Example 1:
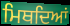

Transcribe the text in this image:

ਮਿਥਦਿਆਂ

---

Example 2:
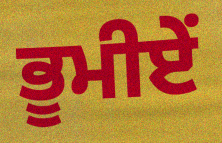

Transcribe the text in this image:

ਭੂਮੀਏਂ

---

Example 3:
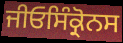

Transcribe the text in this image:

ਜੀਓਸਿੰਕ੍ਰੋਨਸ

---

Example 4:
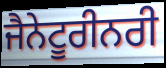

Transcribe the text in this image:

ਜੈਨੇਟੂਰੀਨਰੀ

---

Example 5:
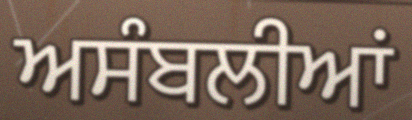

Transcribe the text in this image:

ਅਸੰਬਲੀਆਂ